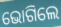
ଭୋଗିଲେ